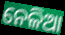
ନେଳିଆ